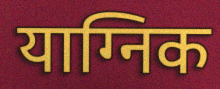
याग्निक